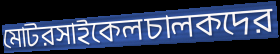
মোটরসাইকেলচালকদের